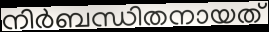
നിർബന്ധിതനായത്